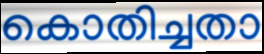
കൊതിച്ചതാ